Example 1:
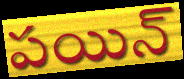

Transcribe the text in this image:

పయిన్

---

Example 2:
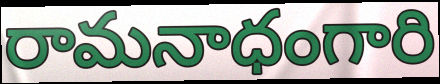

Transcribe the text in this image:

రామనాధంగారి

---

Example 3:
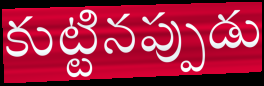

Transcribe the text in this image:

కుట్టినప్పుడు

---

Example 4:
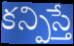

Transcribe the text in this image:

కన్పిస్తే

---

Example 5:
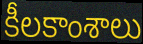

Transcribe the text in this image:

కీలకాంశాలు